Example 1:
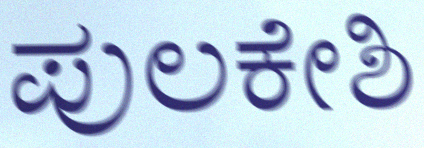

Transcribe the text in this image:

ಪುಲಕೇಶಿ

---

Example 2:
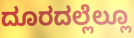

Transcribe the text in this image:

ದೂರದಲ್ಲೆಲ್ಲೂ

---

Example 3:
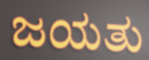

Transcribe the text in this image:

ಜಯತು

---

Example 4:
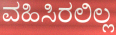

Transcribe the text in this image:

ವಹಿಸಿರಲಿಲ್ಲ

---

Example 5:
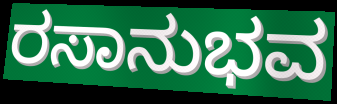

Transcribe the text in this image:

ರಸಾನುಭವ